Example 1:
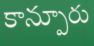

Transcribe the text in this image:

కాన్పూరు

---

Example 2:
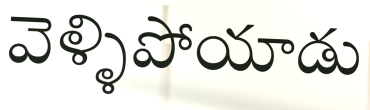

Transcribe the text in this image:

వెళ్ళిపోయాడు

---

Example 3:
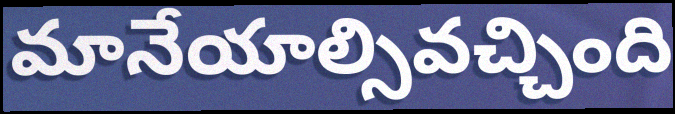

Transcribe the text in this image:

మానేయాల్సివచ్చింది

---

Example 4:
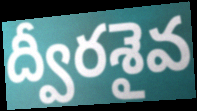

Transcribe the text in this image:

ద్వీరశైవ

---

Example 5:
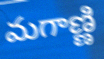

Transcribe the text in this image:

మగాణ్ణి